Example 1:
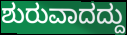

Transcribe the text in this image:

ಶುರುವಾದದ್ದು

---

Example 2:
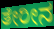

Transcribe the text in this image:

ತೇರೀನ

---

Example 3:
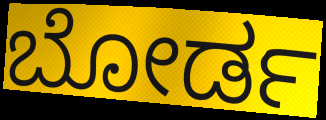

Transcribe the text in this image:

ಬೋರ್ಡ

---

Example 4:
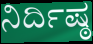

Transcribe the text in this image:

ನಿರ್ದಿಷ್ಠ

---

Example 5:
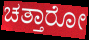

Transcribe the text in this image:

ಚತ್ತಾರೋ